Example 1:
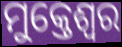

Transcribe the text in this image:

ମୁକ୍ତେଶ୍ଵର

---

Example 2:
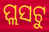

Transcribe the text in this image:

ପ୍ଲସଟୁ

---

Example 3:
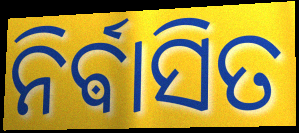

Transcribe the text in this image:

ନିର୍ଵାସିତ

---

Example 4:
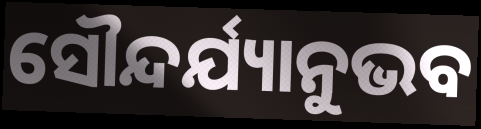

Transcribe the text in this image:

ସୌନ୍ଦର୍ଯ୍ୟାନୁଭବ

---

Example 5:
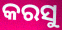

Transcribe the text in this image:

କରସୁ